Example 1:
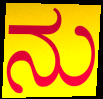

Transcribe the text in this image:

ನು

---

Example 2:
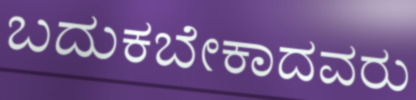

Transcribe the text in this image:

ಬದುಕಬೇಕಾದವರು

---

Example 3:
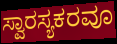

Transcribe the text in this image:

ಸ್ವಾರಸ್ಯಕರವೂ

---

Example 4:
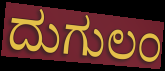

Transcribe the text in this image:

ದುಗುಲಂ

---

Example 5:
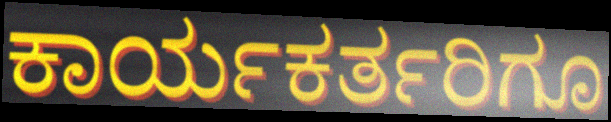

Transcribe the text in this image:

ಕಾರ್ಯಕರ್ತರಿಗೂ